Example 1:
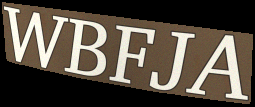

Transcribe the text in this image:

WBFJA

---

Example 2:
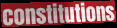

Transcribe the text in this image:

constitutions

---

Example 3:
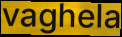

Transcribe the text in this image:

vaghela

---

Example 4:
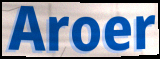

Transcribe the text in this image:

Aroer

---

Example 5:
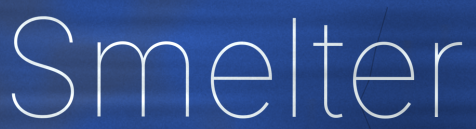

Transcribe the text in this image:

Smelter